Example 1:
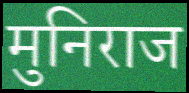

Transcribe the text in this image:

मुनिराज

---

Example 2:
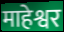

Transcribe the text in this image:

माहेश्वर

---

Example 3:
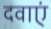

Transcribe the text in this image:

दवाएं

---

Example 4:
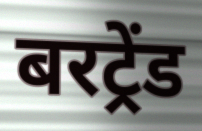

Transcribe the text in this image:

बरट्रेंड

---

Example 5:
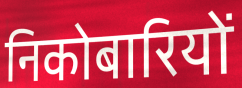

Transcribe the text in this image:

निकोबारियों